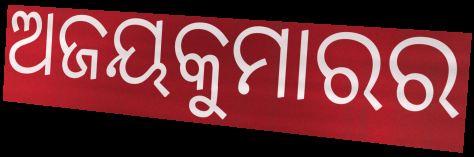
ଅଜୟକୁମାରର